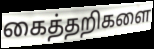
கைத்தறிகளை